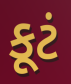
કૂટં